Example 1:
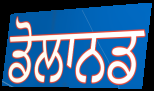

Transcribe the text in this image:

ਡੋਲਾਨਡ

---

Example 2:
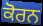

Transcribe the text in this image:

ਕੋਰਨ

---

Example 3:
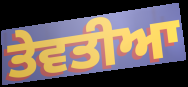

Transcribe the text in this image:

ਤੇਵਤੀਆ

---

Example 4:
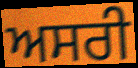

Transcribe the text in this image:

ਅਸਰੀ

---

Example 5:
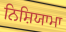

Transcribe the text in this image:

ਨਿਸ਼ਿਯਾਮਾ